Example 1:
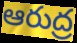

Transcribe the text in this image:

ఆరుద్ర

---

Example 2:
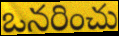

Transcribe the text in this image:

ఒనరించు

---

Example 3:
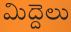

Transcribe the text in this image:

మిద్దెలు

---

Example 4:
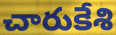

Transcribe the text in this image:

చారుకేశి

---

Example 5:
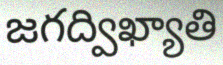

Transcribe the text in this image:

జగద్విఖ్యాతి